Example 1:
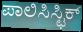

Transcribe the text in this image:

ಪಾಲಿಸಿಸ್ಟಿಕ್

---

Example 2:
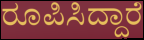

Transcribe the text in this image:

ರೂಪಿಸಿದ್ದಾರೆ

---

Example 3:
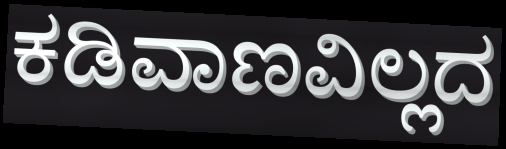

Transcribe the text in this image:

ಕಡಿವಾಣವಿಲ್ಲದ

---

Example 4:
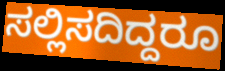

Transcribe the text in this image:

ಸಲ್ಲಿಸದಿದ್ದರೂ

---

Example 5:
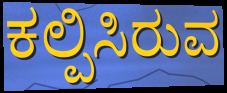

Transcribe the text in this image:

ಕಲ್ಪಿಸಿರುವ